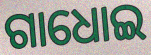
ଗାଧୋଇ